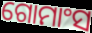
ଗୋମାଂସ